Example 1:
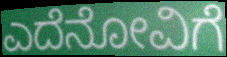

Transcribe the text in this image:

ಎದೆನೋವಿಗೆ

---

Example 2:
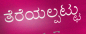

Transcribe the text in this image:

ತೆರೆಯಲ್ಪಟ್ಟು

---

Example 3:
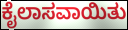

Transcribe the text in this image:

ಕೈಲಾಸವಾಯಿತು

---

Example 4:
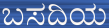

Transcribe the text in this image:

ಬಸದಿಯ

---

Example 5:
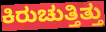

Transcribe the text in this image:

ಕಿರುಚುತ್ತಿತ್ತು